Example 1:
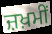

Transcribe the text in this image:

ਜ਼ਖ਼ਮੀਂ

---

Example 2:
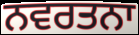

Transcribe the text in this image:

ਨਵਰਤਨਾ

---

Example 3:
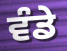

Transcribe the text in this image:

ਵੰਡੇ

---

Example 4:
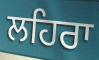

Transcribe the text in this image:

ਲਹਿਰਾ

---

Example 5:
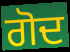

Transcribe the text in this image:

ਗੋਦ